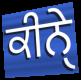
ਕੀਨੇੑ